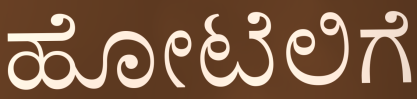
ಹೋಟೆಲಿಗೆ